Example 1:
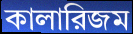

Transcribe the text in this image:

কালারিজম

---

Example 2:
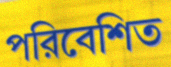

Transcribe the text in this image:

পরিবেশিত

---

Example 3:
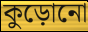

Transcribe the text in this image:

কুড়োনো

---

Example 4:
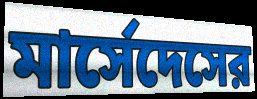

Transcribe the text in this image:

মার্সেদেসের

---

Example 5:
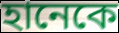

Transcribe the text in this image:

হানেকে